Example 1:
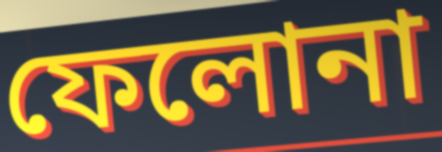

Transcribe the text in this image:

ফেলোনা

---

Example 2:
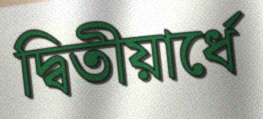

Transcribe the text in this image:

দ্বিতীয়ার্ধে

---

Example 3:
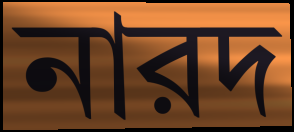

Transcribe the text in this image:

নারদ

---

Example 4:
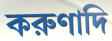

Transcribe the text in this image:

করুণাদি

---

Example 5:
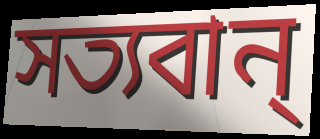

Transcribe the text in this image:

সত্যবান্